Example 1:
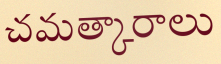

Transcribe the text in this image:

చమత్కారాలు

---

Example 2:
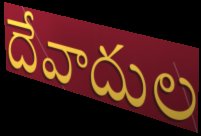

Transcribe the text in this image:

దేవాదుల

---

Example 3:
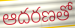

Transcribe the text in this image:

ఆదరణతో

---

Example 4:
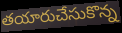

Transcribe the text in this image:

తయారుచేసుకొన్న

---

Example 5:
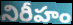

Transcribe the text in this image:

నిరీహం